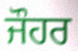
ਜੌਹਰ